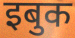
इबुक